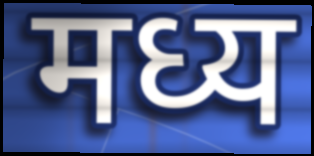
मध्य